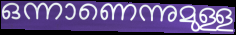
ഒന്നാണെന്നുമുള്ള